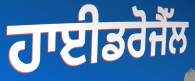
ਹਾਈਡਰੋਜੈੱਲ